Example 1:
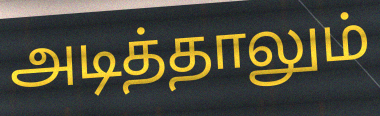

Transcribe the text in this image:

அடித்தாலும்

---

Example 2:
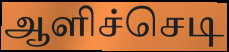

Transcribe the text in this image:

ஆளிச்செடி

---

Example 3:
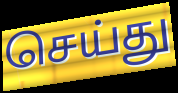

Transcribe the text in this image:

செய்து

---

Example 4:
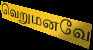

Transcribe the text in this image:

வெறுமனவே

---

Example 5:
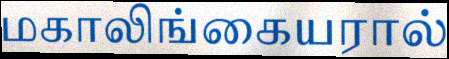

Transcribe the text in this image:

மகாலிங்கையரால்